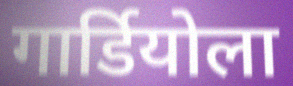
गार्डियोला